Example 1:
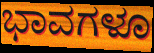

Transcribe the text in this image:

ಭಾವಗಳೂ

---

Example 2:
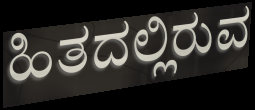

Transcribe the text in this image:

ಹಿತದಲ್ಲಿರುವ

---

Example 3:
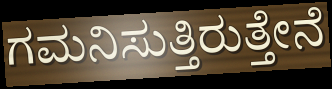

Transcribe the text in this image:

ಗಮನಿಸುತ್ತಿರುತ್ತೇನೆ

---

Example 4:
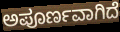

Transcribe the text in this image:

ಅಪೂರ್ಣವಾಗಿದೆ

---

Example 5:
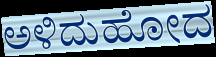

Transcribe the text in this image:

ಅಳಿದುಹೋದ